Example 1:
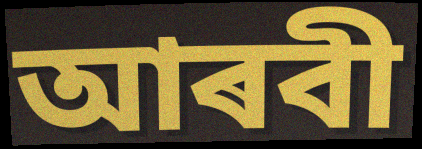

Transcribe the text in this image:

আৰবী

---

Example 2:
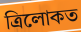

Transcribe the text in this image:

ত্ৰিলোকত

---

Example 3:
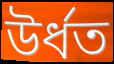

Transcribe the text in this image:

উৰ্ধত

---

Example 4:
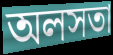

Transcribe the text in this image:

অলসতা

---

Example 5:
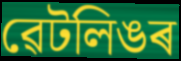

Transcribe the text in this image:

ৱেটলিঙৰ